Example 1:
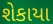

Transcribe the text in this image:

શેકાયા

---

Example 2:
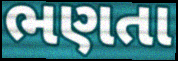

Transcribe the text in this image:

ભણતા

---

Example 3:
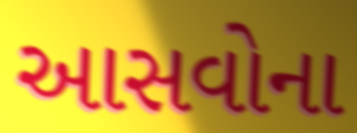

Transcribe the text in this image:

આસવોના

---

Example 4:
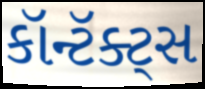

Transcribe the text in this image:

કૉન્ટૅક્ટ્સ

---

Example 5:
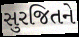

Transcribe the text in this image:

સુરજિતને